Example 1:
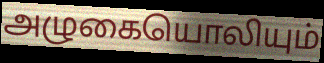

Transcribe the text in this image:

அழுகையொலியும்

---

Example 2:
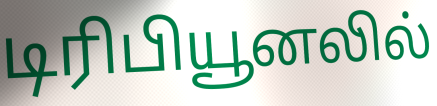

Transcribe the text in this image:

டிரிபியூனலில்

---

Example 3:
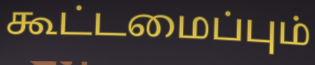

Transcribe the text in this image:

கூட்டமைப்பும்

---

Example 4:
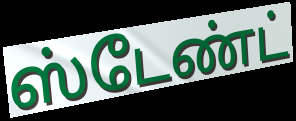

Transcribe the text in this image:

ஸ்டேண்ட்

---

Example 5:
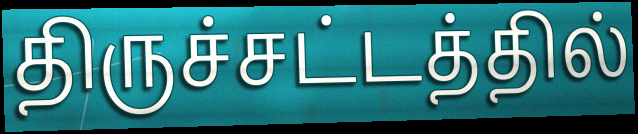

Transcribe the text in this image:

திருச்சட்டத்தில்